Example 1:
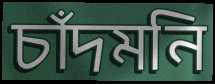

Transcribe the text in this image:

চাঁদমনি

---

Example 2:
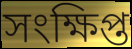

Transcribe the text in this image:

সংক্ষিপ্ত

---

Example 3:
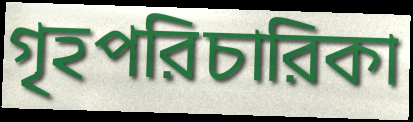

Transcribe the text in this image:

গৃহপরিচারিকা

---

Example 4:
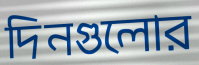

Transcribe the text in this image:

দিনগুলোর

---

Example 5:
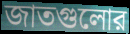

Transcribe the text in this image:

জাতগুলোর